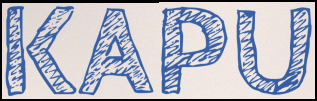
KAPU